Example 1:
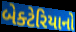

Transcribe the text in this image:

બેક્ટેરિયાનો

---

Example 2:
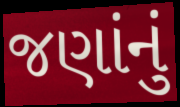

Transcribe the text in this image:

જણાંનું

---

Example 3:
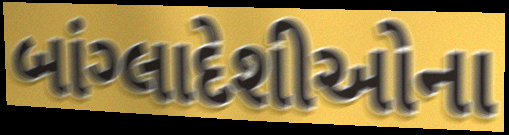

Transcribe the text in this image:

બાંગ્લાદેશીઓના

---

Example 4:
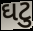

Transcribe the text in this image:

ઘટુ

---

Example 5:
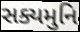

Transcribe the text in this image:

સક્યમુનિ